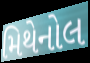
મિથેનોલ